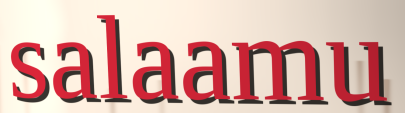
salaamu